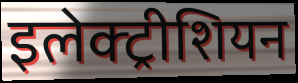
इलेक्ट्रीशियन